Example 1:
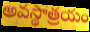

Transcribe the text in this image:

అవస్థాత్రయం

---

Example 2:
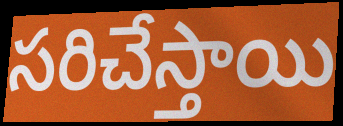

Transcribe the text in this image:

సరిచేస్తాయి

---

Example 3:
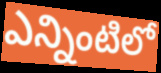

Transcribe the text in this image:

ఎన్నింటిలో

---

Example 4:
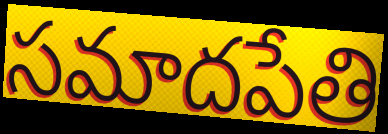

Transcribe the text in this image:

సమాదపేతి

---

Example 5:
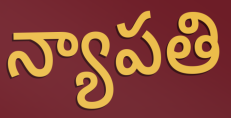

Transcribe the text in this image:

న్యాపతి